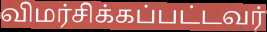
விமர்சிக்கப்பட்டவர்